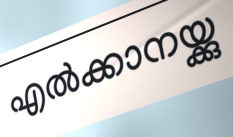
എൽക്കാനയ്ക്കു